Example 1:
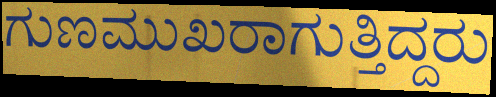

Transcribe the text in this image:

ಗುಣಮುಖರಾಗುತ್ತಿದ್ದರು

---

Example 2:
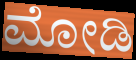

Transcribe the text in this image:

ಮೋಡಿ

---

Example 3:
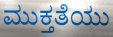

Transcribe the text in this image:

ಮುಕ್ತತೆಯು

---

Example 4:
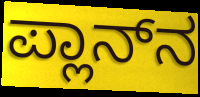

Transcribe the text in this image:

ಪ್ಲಾನ್‌ನ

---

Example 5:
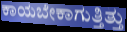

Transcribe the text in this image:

ಕಾಯಬೇಕಾಗುತ್ತಿತ್ತು